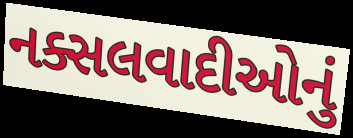
નક્સલવાદીઓનું